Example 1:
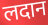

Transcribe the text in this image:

लदान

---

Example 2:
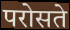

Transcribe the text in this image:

परोसते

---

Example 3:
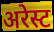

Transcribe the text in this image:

अरेस्ट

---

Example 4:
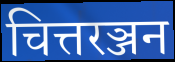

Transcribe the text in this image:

चित्तरञ्जन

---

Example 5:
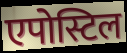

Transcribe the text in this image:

एपोस्टिल